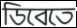
ডিবেতে